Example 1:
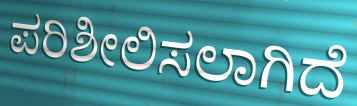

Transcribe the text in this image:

ಪರಿಶೀಲಿಸಲಾಗಿದೆ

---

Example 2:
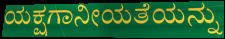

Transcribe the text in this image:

ಯಕ್ಷಗಾನೀಯತೆಯನ್ನು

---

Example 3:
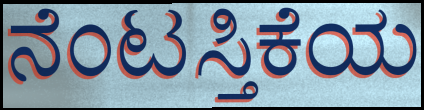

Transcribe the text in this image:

ನೆಂಟಸ್ತಿಕೆಯ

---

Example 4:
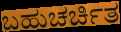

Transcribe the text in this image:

ಬಹುಚರ್ಚಿತ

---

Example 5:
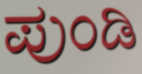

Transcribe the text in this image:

ಪುಂಡಿ